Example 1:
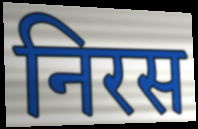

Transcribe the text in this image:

निरस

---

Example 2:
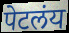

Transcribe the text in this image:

पेटलंय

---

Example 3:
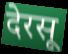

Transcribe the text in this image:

देरसू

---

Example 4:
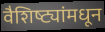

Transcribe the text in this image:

वैशिष्ट्यांमधून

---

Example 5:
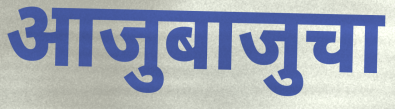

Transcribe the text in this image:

आजुबाजुचा